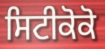
ਸਿਟੀਕੋਕੋ